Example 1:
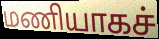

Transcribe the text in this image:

மணியாகச்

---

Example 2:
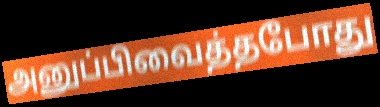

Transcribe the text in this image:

அனுப்பிவைத்தபோது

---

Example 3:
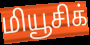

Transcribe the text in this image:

மியூசிக்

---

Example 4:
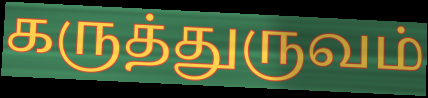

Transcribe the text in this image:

கருத்துருவம்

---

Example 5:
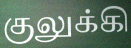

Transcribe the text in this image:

குலுக்கி